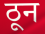
ठून